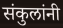
संकुलांनी